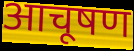
आचूषण